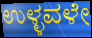
ಉಳ್ಳವಳೇ